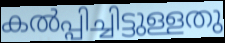
കൽപ്പിച്ചിട്ടുള്ളതു